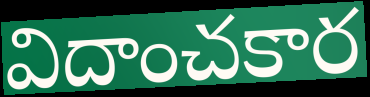
విదాంచకార